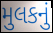
મુલકનું